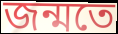
জন্মতে